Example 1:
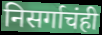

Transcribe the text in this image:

निसर्गाचंही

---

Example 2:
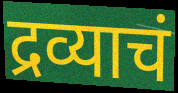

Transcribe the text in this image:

द्रव्याचं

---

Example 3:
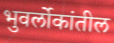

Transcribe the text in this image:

भुवर्लोकांतील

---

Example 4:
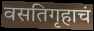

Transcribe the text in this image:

वसतिगृहाचं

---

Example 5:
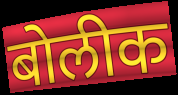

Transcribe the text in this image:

बोलीक